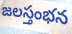
జలస్తంభన